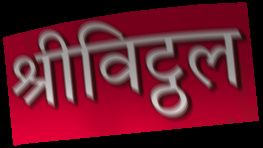
श्रीविट्ठल